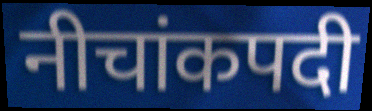
नीचांकपदी